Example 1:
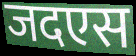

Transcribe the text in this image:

जदएस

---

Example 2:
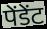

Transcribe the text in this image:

पेंडेंट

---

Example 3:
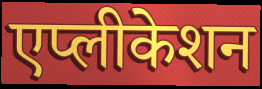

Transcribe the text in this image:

एप्लीकेशन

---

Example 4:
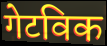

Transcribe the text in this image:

गेटविक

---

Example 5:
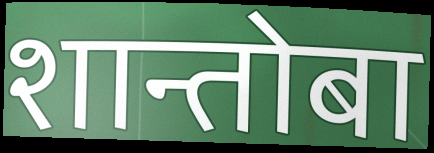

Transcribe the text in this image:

शान्तोबा